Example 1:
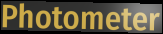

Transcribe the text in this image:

Photometer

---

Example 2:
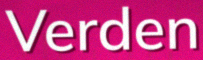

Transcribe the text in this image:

Verden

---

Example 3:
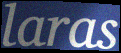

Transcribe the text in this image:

laras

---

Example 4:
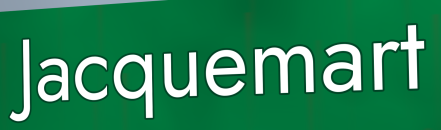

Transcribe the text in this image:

Jacquemart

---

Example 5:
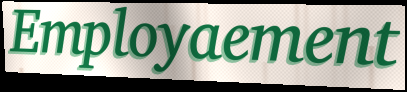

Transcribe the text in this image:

Employaement